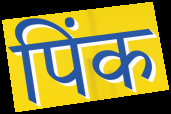
पिंक